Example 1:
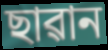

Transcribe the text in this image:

ছাৱান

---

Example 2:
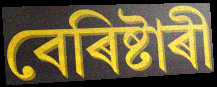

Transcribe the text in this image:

বেৰিষ্টাৰী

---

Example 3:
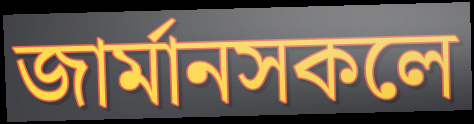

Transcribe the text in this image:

জাৰ্মানসকলে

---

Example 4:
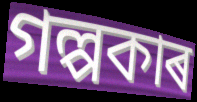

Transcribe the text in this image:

গল্পকাৰ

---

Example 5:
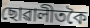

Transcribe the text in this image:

ছোৱালীতকৈ